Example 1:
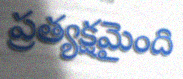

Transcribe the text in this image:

ప్రత్యక్షమైంది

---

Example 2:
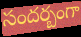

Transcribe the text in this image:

సందర్బంగా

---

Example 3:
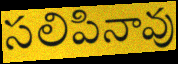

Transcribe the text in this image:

సలిపినావు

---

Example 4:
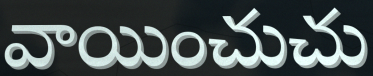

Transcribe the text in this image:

వాయించుచు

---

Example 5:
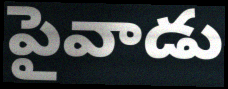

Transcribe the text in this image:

పైవాడు